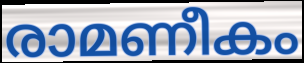
രാമണീകം